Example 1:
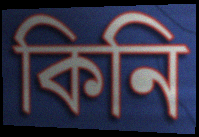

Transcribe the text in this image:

কিনি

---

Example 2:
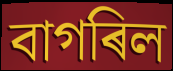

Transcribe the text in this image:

বাগৰিল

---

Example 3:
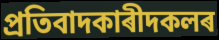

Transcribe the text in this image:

প্ৰতিবাদকাৰীদকলৰ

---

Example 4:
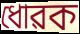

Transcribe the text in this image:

ধোৱক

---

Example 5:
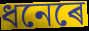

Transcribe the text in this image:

ধনেৰে